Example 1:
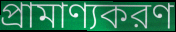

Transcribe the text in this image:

প্রামাণ্যকরণ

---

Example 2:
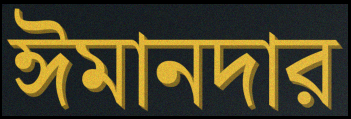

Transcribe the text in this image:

ঈমানদার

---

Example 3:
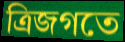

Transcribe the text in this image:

ত্রিজগতে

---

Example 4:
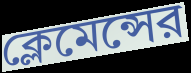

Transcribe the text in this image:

ক্লেমেন্সের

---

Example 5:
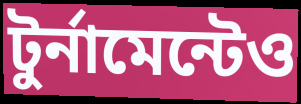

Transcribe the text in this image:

টুর্নামেন্টেও